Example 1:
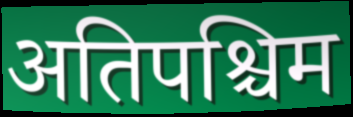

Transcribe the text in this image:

अतिपश्चिम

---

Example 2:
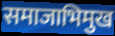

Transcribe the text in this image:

समाजाभिमुख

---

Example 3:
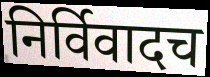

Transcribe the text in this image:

निर्विवादच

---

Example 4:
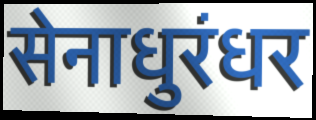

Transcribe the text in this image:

सेनाधुरंधर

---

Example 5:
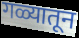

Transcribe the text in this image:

गळ्यातून